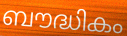
ബൗദ്ധികം